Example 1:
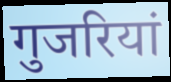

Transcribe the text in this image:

गुजरियां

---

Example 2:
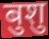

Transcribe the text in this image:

बुशु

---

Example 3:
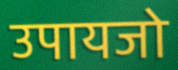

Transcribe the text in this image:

उपायजो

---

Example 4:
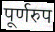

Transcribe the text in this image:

पूर्णरुप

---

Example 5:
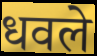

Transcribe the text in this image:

धवले